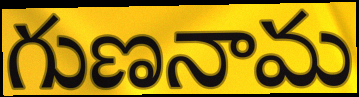
గుణనామ